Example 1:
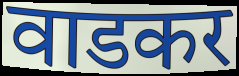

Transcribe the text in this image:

वाडकर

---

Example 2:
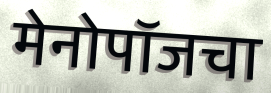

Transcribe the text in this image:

मेनोपॉजचा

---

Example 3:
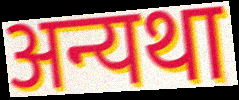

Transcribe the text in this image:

अन्यथा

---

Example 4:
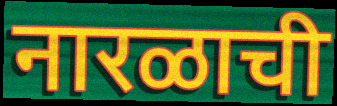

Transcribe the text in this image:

नारळाची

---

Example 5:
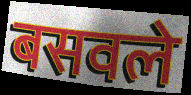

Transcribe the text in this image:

बसवले